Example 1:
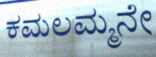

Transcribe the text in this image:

ಕಮಲಮ್ಮನೇ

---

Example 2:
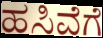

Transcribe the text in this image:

ಹಸಿವೆಗೆ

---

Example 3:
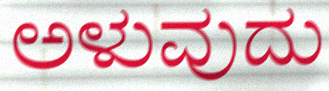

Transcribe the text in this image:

ಅಳುವುದು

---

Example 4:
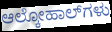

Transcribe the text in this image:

ಆಲ್ಕೋಹಾಲ್‌ಗಳು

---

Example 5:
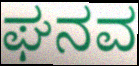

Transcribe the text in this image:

ಘನವ